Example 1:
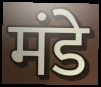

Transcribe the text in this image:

मंडे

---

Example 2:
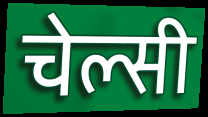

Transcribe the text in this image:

चेल्सी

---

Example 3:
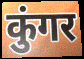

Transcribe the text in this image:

कुंगर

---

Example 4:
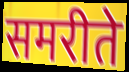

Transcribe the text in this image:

समरीते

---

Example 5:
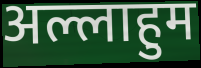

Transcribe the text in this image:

अल्लाहुम